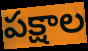
పక్షాల